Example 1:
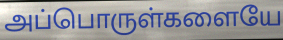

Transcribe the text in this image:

அப்பொருள்களையே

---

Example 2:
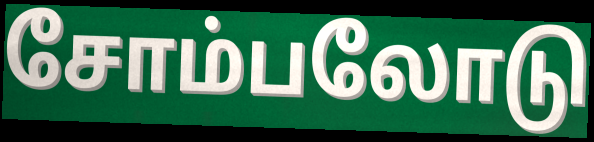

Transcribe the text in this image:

சோம்பலோடு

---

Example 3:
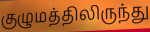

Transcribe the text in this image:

குழுமத்திலிருந்து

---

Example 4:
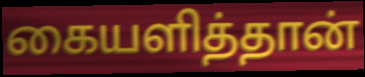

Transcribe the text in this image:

கையளித்தான்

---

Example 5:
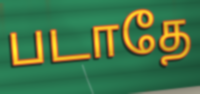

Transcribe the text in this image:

படாதே